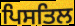
ਪਿਸਤਿਲ